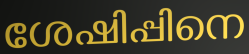
ശേഷിപ്പിനെ